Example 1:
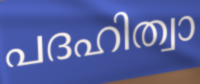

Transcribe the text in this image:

പദഹിത്വാ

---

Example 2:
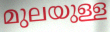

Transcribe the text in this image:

മുലയുള്ള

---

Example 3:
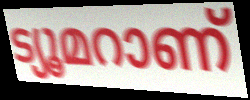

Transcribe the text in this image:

ട്യൂമറാണ്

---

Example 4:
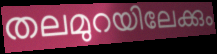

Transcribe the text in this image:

തലമുറയിലേക്കും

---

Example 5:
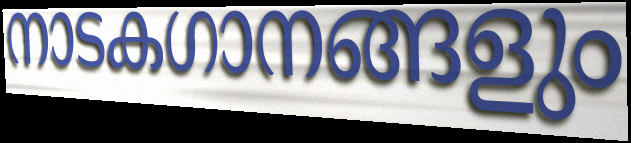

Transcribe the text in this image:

നാടകഗാനങ്ങളും